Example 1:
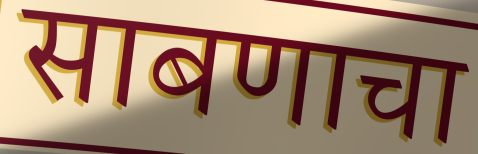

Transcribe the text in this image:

साबणाचा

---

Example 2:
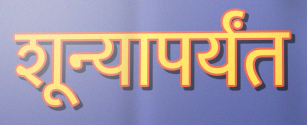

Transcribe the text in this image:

शून्यापर्यंत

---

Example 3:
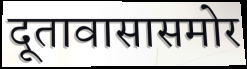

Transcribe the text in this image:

दूतावासासमोर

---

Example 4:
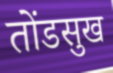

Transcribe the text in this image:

तोंडसुख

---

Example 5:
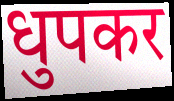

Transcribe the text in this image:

धुपकर